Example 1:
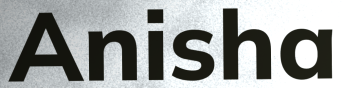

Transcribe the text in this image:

Anisha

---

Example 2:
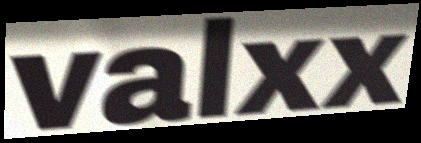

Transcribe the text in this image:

valxx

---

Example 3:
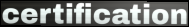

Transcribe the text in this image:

certification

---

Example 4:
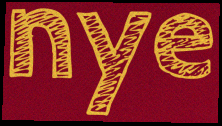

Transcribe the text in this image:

nye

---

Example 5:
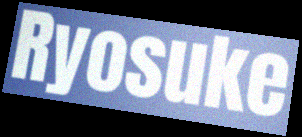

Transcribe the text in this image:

Ryosuke